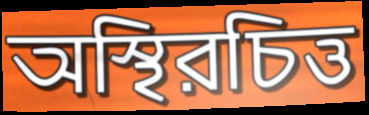
অস্থিরচিত্ত